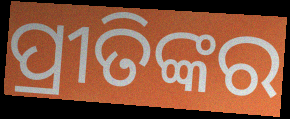
ପ୍ରୀତିଙ୍କର